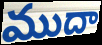
ముదా